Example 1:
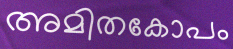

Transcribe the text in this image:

അമിതകോപം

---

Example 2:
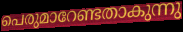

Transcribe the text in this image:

പെരുമാറേണ്ടതാകുന്നു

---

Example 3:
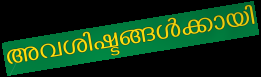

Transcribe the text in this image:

അവശിഷ്ടങ്ങൾക്കായി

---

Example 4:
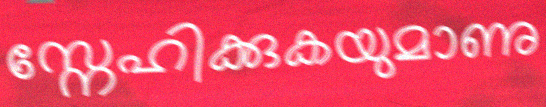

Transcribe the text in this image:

സ്നേഹിക്കുകയുമാണു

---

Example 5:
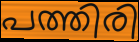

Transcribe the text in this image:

പത്തിരി